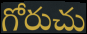
గోరుచు